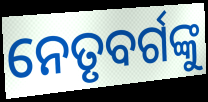
ନେତୃବର୍ଗଙ୍କୁ